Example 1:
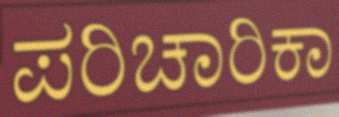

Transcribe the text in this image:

ಪರಿಚಾರಿಕಾ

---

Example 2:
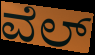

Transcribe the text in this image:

ವೆಲ್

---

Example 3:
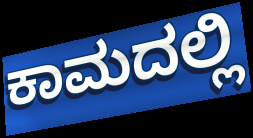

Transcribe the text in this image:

ಕಾಮದಲ್ಲಿ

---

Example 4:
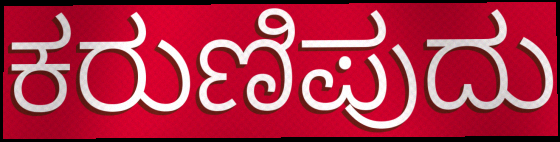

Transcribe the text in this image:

ಕರುಣಿಪುದು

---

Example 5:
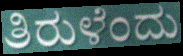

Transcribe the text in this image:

ತಿರುಳೆಂದು